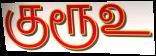
குரூஉ